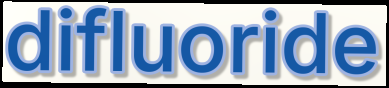
difluoride